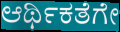
ಆರ್ಥಿಕತೆಗೇ